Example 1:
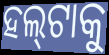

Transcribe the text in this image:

ହଲ୍‌ଟାକୁ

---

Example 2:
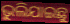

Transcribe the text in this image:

ଭୁଲିଯାଇଛୁ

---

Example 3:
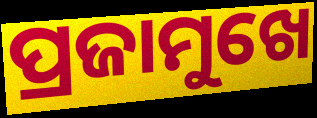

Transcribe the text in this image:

ପ୍ରଜାମୁଖେ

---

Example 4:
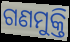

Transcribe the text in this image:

ଗଣମୁକ୍ତି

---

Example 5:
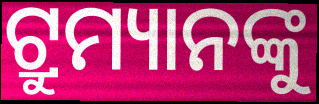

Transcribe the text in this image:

ଟ୍ରୁମ୍ୟାନଙ୍କୁ